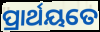
ପ୍ରାର୍ଥୟତେ